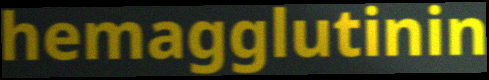
hemagglutinin